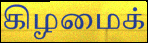
கிழமைக்